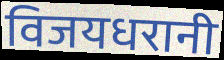
विजयधरानी